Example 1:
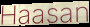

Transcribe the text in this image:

Haasan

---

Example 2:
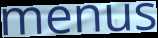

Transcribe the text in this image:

menus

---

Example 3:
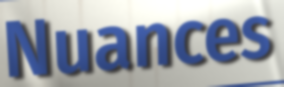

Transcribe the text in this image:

Nuances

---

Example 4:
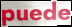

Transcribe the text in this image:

puede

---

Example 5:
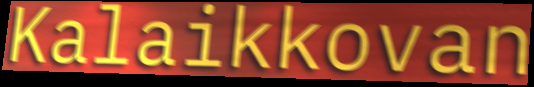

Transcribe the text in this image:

Kalaikkovan